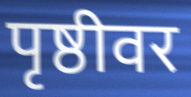
पृष्ठीवर